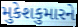
મુકેશકુમારને